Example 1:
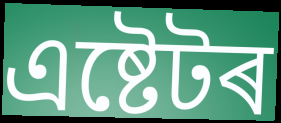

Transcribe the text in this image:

এষ্টেটৰ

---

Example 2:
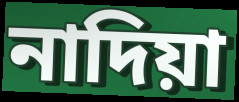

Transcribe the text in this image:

নাদিয়া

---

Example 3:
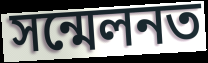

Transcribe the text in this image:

সন্মেলনত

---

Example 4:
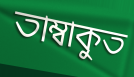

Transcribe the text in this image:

তাম্বাকুত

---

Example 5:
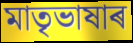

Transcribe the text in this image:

মাতৃভাষাৰ